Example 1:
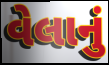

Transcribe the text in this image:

વેલાનું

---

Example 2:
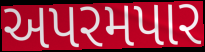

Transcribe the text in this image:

અપરમપાર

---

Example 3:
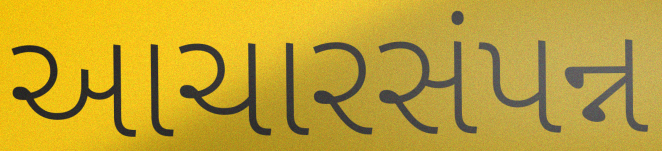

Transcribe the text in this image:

આચારસંપન્ન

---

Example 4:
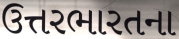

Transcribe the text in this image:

ઉત્તરભારતના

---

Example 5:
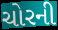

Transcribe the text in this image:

ચોરની